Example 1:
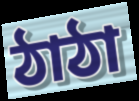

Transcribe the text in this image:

ঠাঠা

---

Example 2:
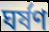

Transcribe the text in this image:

ঘর্ষণ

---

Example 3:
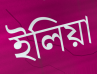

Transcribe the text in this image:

ইলিয়া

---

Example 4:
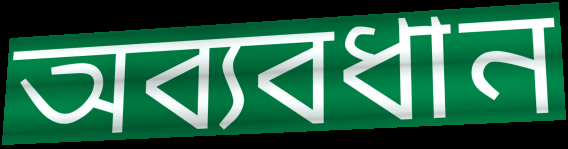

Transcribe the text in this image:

অব্যবধান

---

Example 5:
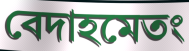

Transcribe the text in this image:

বেদাহমেতং